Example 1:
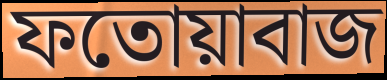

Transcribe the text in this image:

ফতোয়াবাজ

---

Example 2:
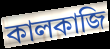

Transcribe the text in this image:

কালকাজি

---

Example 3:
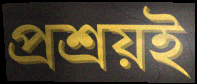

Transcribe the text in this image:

প্রশ্রয়ই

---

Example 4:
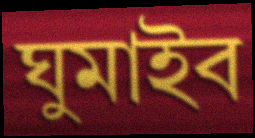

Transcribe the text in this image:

ঘুমাইব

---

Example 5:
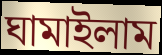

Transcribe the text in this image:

ঘামাইলাম